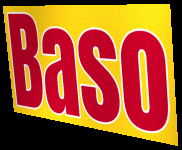
Baso